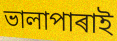
ভালাপাৰাই